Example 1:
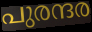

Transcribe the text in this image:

പുരന്ദര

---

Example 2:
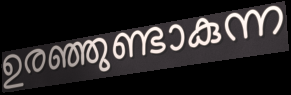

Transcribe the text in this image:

ഉരഞ്ഞുണ്ടാകുന്ന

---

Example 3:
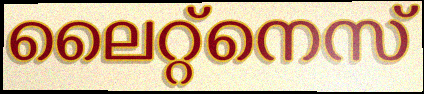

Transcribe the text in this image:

ലൈറ്റ്നെസ്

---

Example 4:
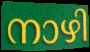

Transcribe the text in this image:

നാഴി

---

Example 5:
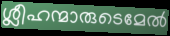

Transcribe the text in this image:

ശ്ലീഹന്മാരുടെമേൽ